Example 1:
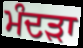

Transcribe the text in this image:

ਮੰਦੜਾ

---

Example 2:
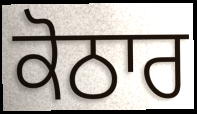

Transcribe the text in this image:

ਕੋਠਾਰ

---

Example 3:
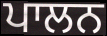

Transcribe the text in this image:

ਪਾਲਨ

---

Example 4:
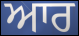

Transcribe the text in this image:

ਆਰ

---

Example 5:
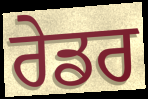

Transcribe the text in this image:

ਰੇਡਰ